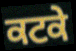
ਕਟਕੇ